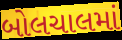
બોલચાલમાં